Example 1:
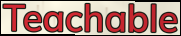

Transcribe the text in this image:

Teachable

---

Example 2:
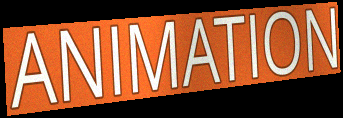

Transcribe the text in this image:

ANIMATION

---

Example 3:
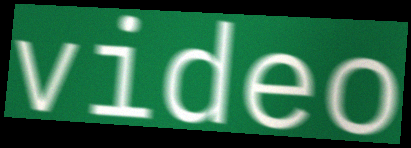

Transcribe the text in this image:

video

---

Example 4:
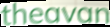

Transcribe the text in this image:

theavan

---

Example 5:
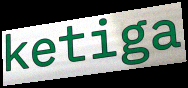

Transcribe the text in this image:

ketiga